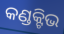
କଣ୍ଡକ୍ଟିଭ